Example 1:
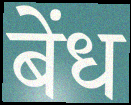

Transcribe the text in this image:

बेंध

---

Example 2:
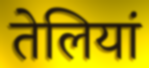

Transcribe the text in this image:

तेलियां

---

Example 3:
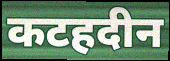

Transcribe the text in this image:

कटहदीन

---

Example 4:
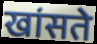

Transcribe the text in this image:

खांसते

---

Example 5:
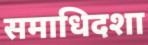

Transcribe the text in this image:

समाधिदशा